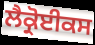
ਲੈਕ੍ਰੋਈਕਸ